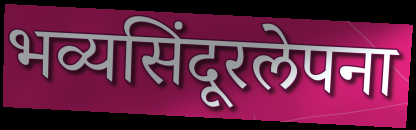
भव्यसिंदूरलेपना